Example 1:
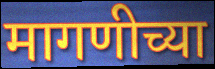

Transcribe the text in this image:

मागणीच्या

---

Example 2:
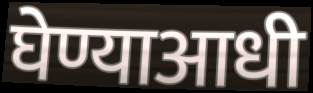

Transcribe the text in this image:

घेण्याआधी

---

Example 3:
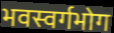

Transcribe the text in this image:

भवस्वर्गभोग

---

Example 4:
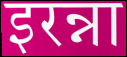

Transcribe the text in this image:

इरन्ना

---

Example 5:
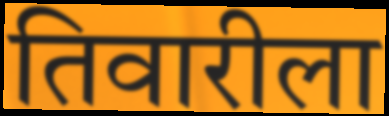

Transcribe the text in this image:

तिवारीला